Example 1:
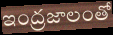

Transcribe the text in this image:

ఇంద్రజాలంతో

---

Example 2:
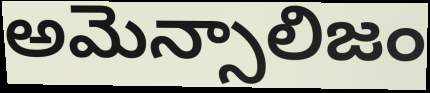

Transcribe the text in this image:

అమెన్సాలిజం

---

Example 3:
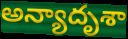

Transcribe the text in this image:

అన్యాదృశా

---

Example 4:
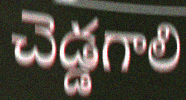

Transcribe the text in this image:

చెడ్డగాలి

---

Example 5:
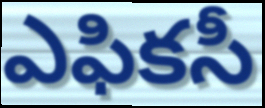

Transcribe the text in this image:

ఎఫికసీ